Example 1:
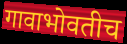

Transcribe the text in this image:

गावाभोवतीच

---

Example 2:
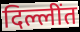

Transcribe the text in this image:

दिल्लींत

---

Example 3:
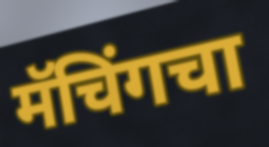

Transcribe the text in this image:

मॅचिंगचा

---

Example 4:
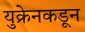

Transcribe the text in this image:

युक्रेनकडून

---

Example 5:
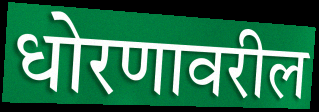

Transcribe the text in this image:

धोरणावरील